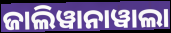
ଜାଲିୱାନାୱାଲା